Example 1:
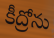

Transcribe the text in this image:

కీద్రోను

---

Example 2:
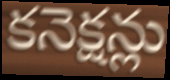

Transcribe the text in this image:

కనెక్షన్లు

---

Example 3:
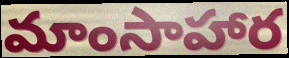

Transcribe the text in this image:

మాంసాహార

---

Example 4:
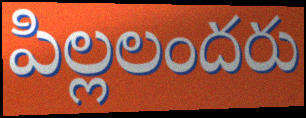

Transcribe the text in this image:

పిల్లలందరు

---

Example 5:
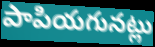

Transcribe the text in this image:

పాపియగునట్లు